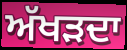
ਅੱਖੜਦਾ